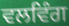
ਵਲਵਿੰਗ